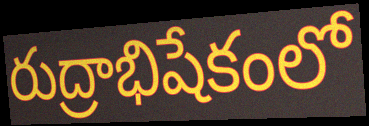
రుద్రాభిషేకంలో